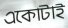
একোটাই